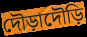
দৌড়াদৌড়ি